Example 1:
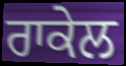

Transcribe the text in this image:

ਰਾਕੇਲ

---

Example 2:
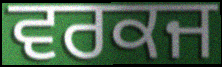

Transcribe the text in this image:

ਵਰਕਜ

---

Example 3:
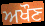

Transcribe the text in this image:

ਅਖੌਣ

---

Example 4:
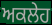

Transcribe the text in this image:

ਅਕਲੇਹ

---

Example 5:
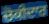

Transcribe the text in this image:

ਚੋਕੀਦਾਰ